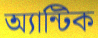
অ্যান্টিক